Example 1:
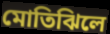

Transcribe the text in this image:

মোতিঝিলে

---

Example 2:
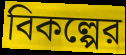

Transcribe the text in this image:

বিকল্পের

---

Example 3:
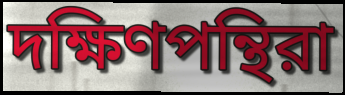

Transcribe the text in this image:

দক্ষিণপন্থিরা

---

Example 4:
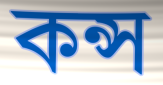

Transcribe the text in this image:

কন্স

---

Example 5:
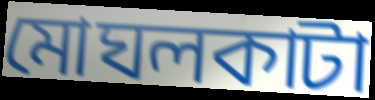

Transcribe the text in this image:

মোঘলকাটা